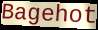
Bagehot